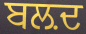
ਬਲ਼ਦ